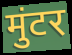
मुंटर